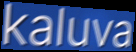
kaluva